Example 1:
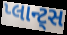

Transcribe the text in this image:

પ્લાન્ટ્સ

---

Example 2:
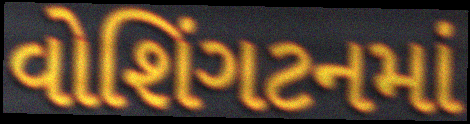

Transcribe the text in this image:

વોશિંગટનમાં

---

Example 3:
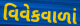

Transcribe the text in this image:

વિવેકવાળાં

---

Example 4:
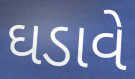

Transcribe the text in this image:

ઘડાવે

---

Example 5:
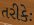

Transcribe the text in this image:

તરીકેઃ